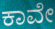
ಕಾವೇ